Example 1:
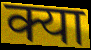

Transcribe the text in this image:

क्या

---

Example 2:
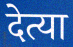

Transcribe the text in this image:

देत्या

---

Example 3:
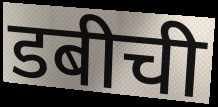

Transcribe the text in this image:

डबीची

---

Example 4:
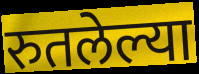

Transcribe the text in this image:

रुतलेल्या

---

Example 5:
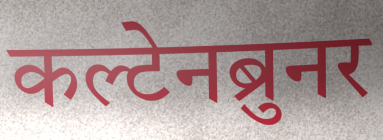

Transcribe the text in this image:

कल्टेनब्रुनर